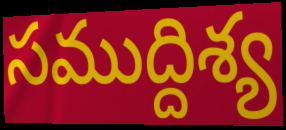
సముద్దిశ్య